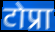
टोप्रा